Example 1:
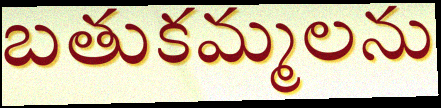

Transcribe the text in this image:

బతుకమ్మలను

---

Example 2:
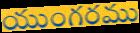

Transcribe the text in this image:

యుంగరము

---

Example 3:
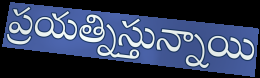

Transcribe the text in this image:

ప్రయత్నిస్తున్నాయి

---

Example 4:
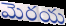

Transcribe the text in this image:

మెరయ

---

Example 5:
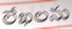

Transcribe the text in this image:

లేఖలను